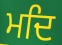
ਮਦਿ